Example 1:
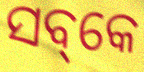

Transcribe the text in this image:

ସବ୍‌କେ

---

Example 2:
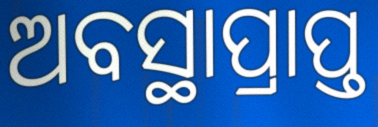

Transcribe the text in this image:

ଅବସ୍ଥାପ୍ରାପ୍ତ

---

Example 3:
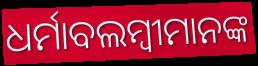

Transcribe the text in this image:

ଧର୍ମାବଲମ୍ବୀମାନଙ୍କ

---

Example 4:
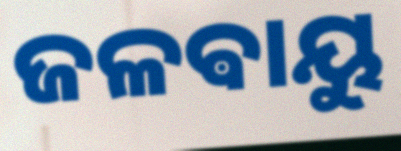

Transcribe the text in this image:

ଜଳଵାୟୁ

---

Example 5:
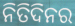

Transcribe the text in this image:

ନିତିଦିନର